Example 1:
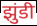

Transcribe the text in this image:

झुंडी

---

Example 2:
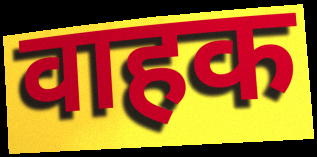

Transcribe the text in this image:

वाहक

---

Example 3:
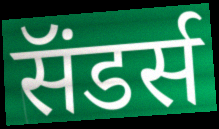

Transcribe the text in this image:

सॅंडर्स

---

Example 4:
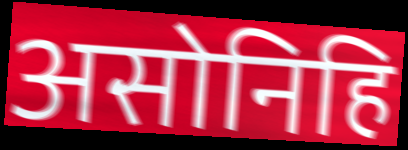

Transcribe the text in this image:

असोनिहि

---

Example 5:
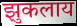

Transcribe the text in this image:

झुकलाय